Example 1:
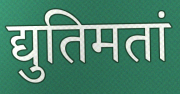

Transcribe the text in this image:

द्युतिमतां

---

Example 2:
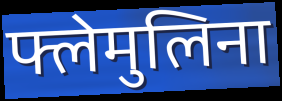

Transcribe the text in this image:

फ्लेमुलिना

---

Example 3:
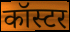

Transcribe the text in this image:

कॉस्टर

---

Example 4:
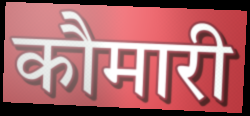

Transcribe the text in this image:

कौमारी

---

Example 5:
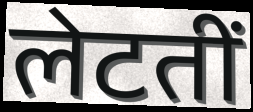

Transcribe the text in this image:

लेटतीं